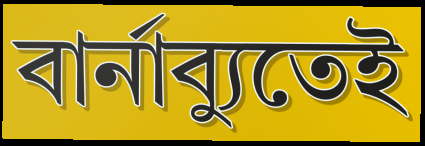
বার্নাব্যুতেই